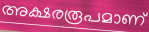
അക്ഷരരൂപമാണ്